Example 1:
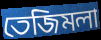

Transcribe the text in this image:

তেজিমলা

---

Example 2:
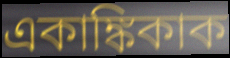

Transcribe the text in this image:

একাঙ্কিকাক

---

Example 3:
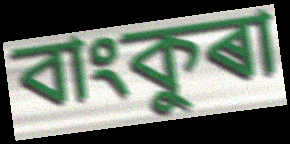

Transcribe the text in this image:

বাংকুৰা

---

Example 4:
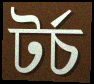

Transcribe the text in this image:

টৰ্চ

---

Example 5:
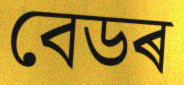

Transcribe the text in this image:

বেডৰ